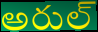
అరుల్